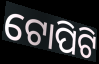
ଟୋପିଟି